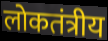
लोकतंत्रीय